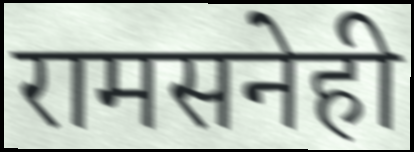
रामसनेही